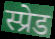
स्प्रेड